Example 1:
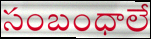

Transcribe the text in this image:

సంబంధాలే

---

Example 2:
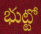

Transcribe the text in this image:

భుట్టో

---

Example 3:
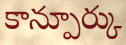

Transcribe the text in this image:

కాన్పూర్కు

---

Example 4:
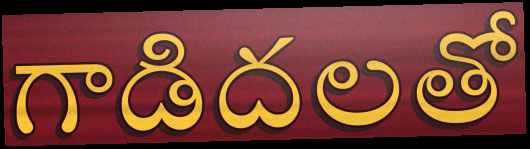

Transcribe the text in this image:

గాడిదలతో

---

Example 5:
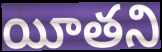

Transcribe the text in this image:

యీతని